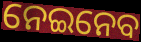
ନେଇନେବ